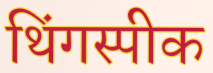
थिंगस्पीक